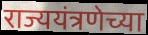
राज्ययंत्रणेच्या